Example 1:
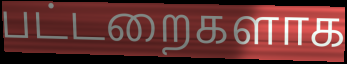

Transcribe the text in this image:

பட்டறைகளாக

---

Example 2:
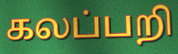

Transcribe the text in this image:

கலப்பறி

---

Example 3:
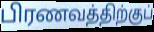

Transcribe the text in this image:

பிரணவத்திற்குப்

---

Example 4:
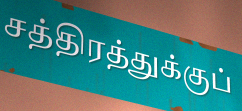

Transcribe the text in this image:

சத்திரத்துக்குப்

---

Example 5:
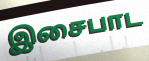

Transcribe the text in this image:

இசைபாட